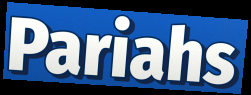
Pariahs